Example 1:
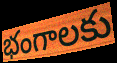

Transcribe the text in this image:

భంగాలకు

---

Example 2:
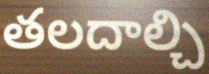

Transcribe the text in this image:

తలదాల్చి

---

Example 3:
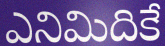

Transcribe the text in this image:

ఎనిమిదికే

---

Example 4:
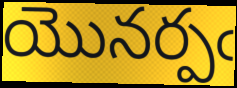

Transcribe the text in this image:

యొనర్పఁ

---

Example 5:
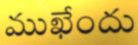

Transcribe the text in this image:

ముఖేందు